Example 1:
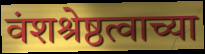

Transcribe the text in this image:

वंशश्रेष्ठत्वाच्या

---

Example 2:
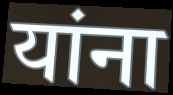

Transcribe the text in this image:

यांना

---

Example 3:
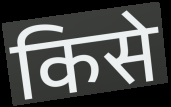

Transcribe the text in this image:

किसे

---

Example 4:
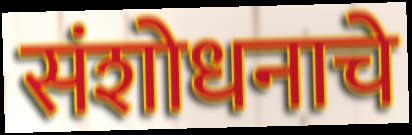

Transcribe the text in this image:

संशोधनाचे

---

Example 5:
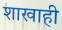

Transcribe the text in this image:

शाखाही